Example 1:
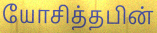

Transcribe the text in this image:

யோசித்தபின்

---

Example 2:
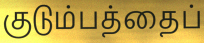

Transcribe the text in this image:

குடும்பத்தைப்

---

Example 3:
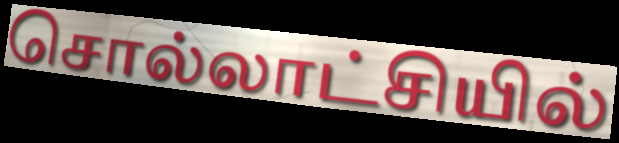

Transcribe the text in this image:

சொல்லாட்சியில்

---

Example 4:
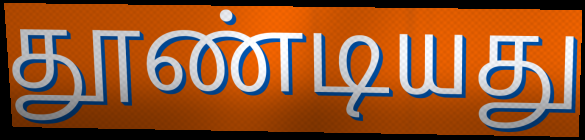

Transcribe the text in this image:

தூண்டியது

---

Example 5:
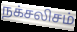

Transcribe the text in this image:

நக்சலிசம்